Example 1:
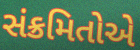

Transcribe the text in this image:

સંક્રમિતોએ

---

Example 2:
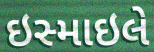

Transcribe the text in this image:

ઇસ્માઇલે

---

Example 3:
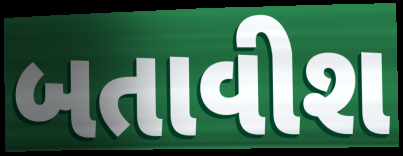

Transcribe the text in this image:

બતાવીશ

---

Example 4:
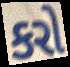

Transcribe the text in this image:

કરો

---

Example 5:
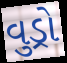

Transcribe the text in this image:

વુડ્રો